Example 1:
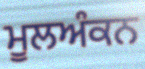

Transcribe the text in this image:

ਮੂਲਅੰਕਨ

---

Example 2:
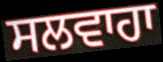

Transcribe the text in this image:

ਸਲਵਾਹਾ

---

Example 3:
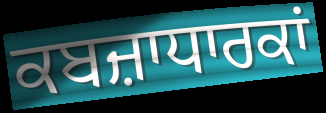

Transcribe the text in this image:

ਕਬਜ਼ਾਧਾਰਕਾਂ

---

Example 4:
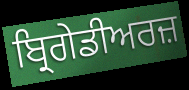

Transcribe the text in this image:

ਬ੍ਰਿਗੇਡੀਅਰਜ਼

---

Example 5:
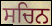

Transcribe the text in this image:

ਸਚਿਨ